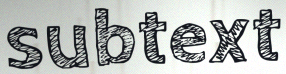
subtext